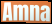
Amna